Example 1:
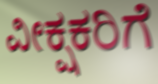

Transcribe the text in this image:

ವೀಕ್ಷಕರಿಗೆ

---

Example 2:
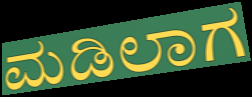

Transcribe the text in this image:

ಮಡಿಲಾಗ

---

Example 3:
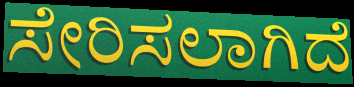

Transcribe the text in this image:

ಸೇರಿಸಲಾಗಿದೆ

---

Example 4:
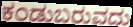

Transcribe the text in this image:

ಕಂಡುಬರುವದು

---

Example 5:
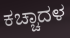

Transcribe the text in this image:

ಕಚ್ಚಾದಳ